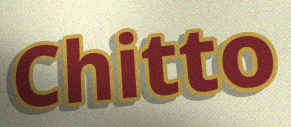
Chitto